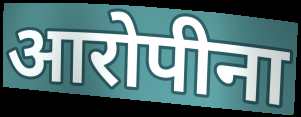
आरोपीना